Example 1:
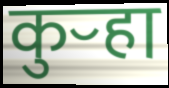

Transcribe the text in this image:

कुऱ्हा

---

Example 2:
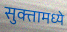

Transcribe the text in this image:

सुक्तामध्ये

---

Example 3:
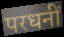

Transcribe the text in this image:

परधनीं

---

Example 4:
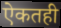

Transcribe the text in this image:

ऐकतही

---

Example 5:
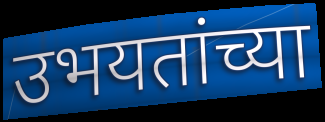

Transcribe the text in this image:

उभयतांच्या